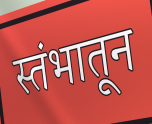
स्तंभातून